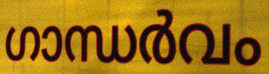
ഗാന്ധർവം